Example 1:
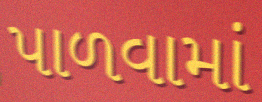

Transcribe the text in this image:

પાળવામાં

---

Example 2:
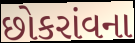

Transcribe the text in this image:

છોકરાંવના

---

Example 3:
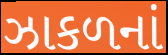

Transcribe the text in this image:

ઝાકળનાં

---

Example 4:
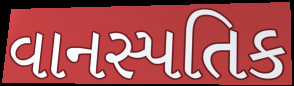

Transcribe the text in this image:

વાનસ્પતિક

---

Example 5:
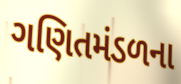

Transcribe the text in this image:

ગણિતમંડળના